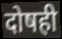
दोषही